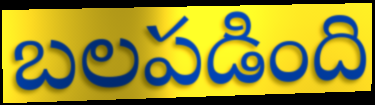
బలపడింది